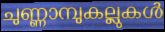
ചുണ്ണാമ്പുകല്ലുകൾ